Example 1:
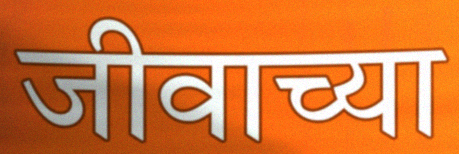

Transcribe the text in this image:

जीवाच्या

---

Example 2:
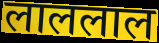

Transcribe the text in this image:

लाललाल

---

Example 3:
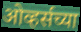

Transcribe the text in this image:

ओव्हर्सच्या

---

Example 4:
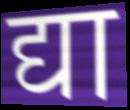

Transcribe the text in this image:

द्या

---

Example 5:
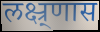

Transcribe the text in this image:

लक्ष्र्णास